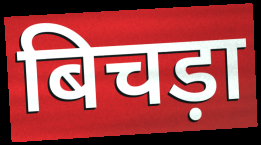
बिचड़ा